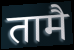
तामै